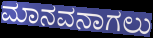
ಮಾನವನಾಗಲು